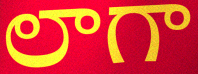
లాగా